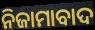
ନିଜାମାବାଦ